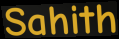
Sahith